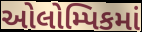
ઓલોમ્પિકમાં